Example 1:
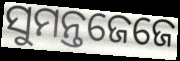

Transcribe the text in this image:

ସୁମନ୍ତଜେଜେ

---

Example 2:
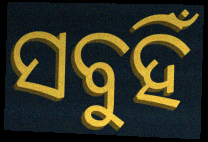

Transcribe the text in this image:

ସବୁହିଁ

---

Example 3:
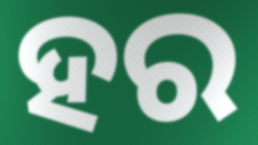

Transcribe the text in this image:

ହର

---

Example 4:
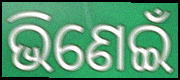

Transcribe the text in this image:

ଭିଣେଇଁ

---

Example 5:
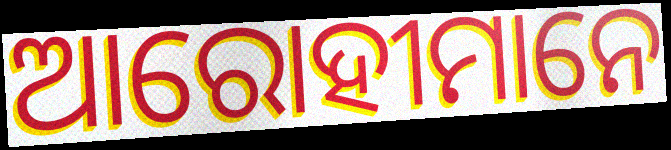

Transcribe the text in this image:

ଆରୋହୀମାନେ